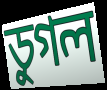
ডুগল